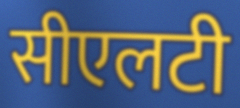
सीएलटी